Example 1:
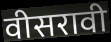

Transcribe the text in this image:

वीसरावी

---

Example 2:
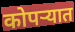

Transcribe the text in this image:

कोपर्‍यात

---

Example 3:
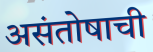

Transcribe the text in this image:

असंतोषाची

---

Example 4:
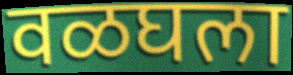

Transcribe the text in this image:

वळघला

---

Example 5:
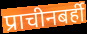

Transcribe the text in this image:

प्राचीनबर्ही